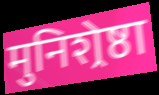
मुनिश्रेष्ठा